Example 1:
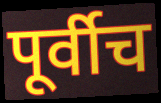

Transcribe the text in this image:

पूर्वीच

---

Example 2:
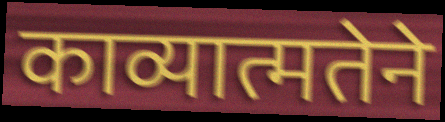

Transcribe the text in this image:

काव्यात्मतेने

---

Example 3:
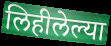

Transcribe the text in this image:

लिहीलेल्या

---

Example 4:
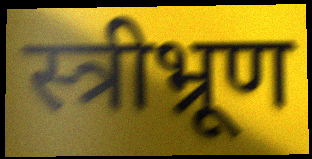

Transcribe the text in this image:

स्त्रीभ्रूण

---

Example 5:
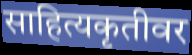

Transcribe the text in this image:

साहित्यकृतीवर